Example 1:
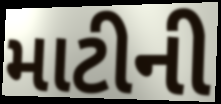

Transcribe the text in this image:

માટીની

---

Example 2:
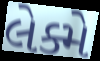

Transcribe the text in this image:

લેક્મે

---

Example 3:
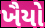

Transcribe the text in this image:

ખૈયો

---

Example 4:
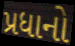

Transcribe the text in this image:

પ્રધાનો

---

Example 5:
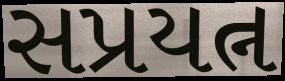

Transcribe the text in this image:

સપ્રયત્ન